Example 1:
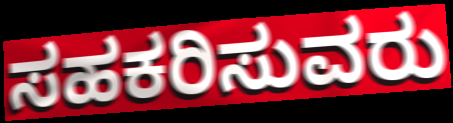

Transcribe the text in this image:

ಸಹಕರಿಸುವರು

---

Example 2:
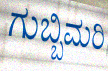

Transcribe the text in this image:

ಗುಬ್ಬಿಮರಿ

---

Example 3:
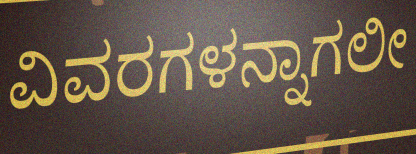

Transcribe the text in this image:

ವಿವರಗಳನ್ನಾಗಲೀ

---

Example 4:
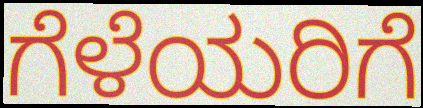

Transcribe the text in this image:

ಗೆಳೆಯರಿಗೆ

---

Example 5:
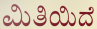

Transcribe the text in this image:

ಮಿತಿಯಿದೆ